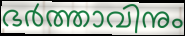
ഭർത്താവിനും